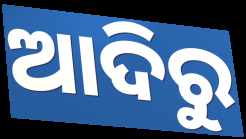
ଆଦିରୁ